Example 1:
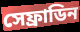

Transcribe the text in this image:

সেফ্রাডিন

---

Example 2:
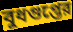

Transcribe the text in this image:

বুধগুপ্তের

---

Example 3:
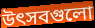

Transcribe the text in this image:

উৎসবগুলো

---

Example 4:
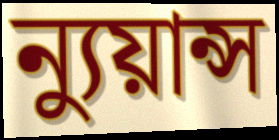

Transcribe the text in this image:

ন্যুয়ান্স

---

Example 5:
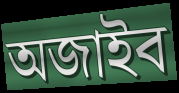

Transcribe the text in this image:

অজাইব